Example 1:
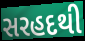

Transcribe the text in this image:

સરહદથી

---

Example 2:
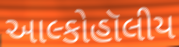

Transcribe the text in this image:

આલ્કોહૉલીય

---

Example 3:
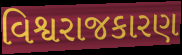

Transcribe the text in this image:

વિશ્વરાજકારણ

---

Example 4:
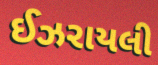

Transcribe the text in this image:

ઈઝરાયલી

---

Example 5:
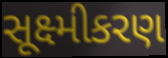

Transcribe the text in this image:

સૂક્ષ્મીકરણ